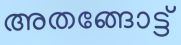
അതങ്ങോട്ട്